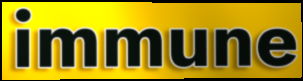
immune